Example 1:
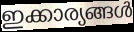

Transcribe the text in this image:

ഇക്കാര്യങ്ങൾ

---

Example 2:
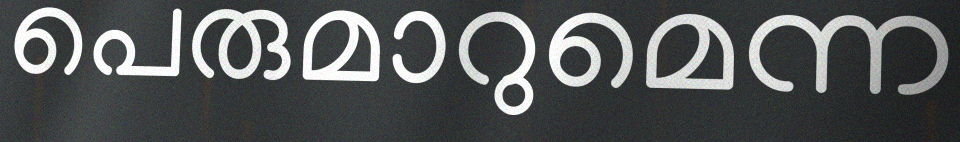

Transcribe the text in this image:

പെരുമാറുമെന്ന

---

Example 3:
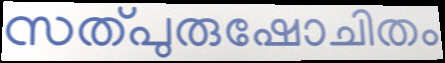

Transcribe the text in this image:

സത്പുരുഷോചിതം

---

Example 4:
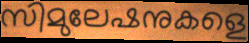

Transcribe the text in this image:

സിമുലേഷനുകളെ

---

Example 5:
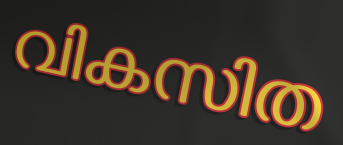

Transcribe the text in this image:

വികസിത